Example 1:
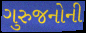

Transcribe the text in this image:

ગુરુજનોની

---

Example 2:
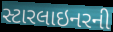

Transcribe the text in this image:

સ્ટારલાઇનરની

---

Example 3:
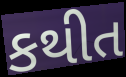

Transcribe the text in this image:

કથીત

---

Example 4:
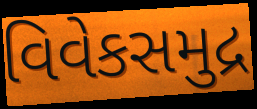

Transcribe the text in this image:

વિવેકસમુદ્ર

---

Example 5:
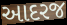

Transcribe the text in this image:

આદરજ